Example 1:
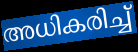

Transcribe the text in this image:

അധികരിച്ച്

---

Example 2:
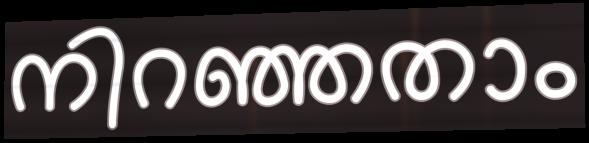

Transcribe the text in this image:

നിറഞ്ഞതാം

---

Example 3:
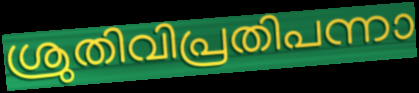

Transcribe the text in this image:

ശ്രുതിവിപ്രതിപന്നാ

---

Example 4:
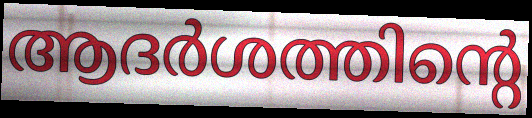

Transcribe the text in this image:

ആദർശത്തിന്റെ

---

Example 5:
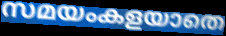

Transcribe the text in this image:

സമയംകളയാതെ